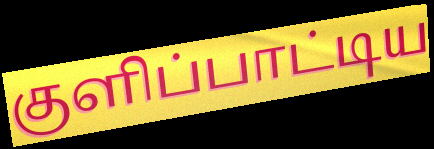
குளிப்பாட்டிய